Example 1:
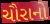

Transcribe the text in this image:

ચૌરાનો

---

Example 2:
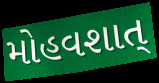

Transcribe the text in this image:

મોહવશાત્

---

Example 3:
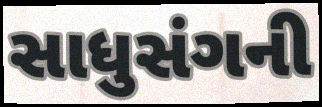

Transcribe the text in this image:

સાધુસંગની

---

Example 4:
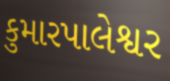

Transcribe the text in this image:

કુમારપાલેશ્વર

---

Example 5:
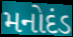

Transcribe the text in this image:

મનોદંડ